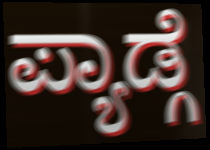
ಪ್ಯಾಡ್ಗೆ